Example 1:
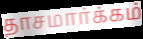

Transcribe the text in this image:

தாசமார்க்கம்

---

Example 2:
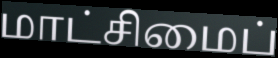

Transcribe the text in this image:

மாட்சிமைப்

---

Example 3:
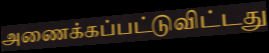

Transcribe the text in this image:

அணைக்கப்பட்டுவிட்டது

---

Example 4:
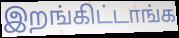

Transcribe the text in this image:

இறங்கிட்டாங்க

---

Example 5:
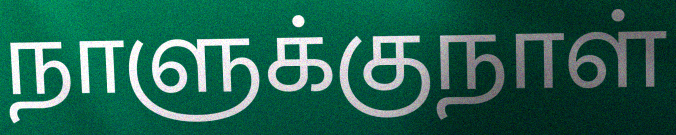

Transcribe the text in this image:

நாளுக்குநாள்